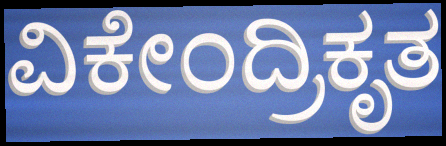
ವಿಕೇಂದ್ರಿಕೃತ